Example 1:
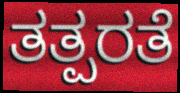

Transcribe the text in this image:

ತತ್ಪರತೆ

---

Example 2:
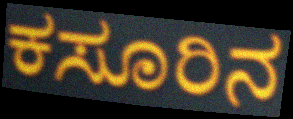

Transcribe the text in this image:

ಕಸೂರಿನ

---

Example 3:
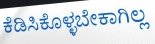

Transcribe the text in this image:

ಕೆಡಿಸಿಕೊಳ್ಳಬೇಕಾಗಿಲ್ಲ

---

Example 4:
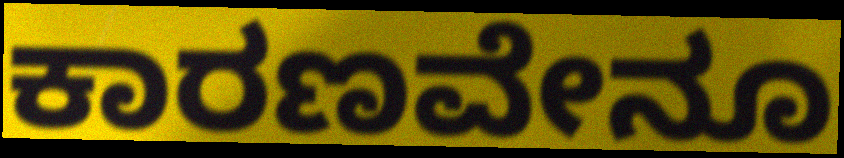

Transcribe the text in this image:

ಕಾರಣವೇನೂ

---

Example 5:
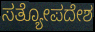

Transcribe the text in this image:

ಸತ್ಯೋಪದೇಶ